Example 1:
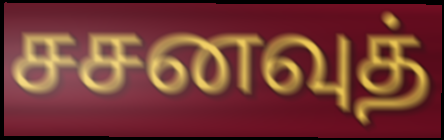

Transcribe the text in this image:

சசனவுத்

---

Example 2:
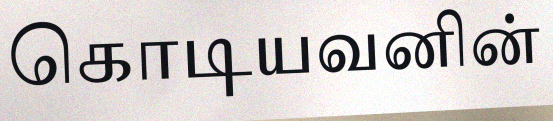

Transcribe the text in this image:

கொடியவனின்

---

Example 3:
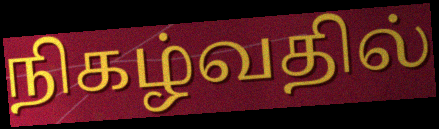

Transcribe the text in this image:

நிகழ்வதில்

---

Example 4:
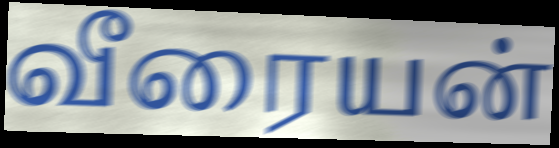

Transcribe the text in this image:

வீரையன்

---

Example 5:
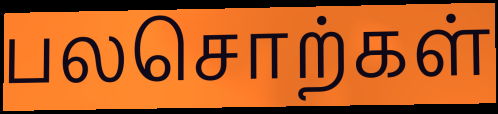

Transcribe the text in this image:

பலசொற்கள்